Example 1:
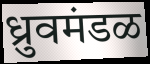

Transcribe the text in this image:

ध्रुवमंडळ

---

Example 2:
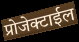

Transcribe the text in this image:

प्रोजेक्टाईल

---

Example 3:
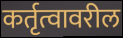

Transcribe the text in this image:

कर्तृत्वावरील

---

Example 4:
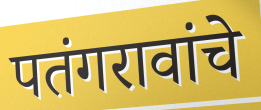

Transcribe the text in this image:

पतंगरावांचे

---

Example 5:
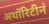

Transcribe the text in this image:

अथॉरिटीनं